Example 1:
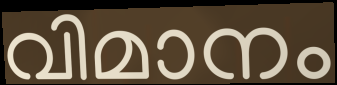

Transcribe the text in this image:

വിമാനം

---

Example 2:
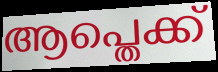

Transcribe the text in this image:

ആപ്തെക്ക്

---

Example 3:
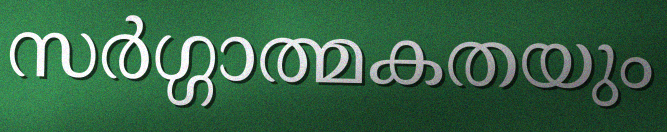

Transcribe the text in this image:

സർഗ്ഗാത്മകതയും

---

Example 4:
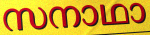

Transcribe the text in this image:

സനാഥാ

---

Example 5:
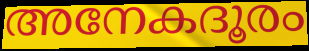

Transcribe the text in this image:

അനേകദൂരം